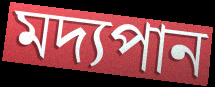
মদ্যপান